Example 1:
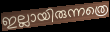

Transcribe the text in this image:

ഇല്ലായിരുന്നത്രെ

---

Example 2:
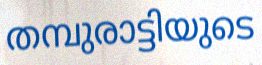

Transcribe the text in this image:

തമ്പുരാട്ടിയുടെ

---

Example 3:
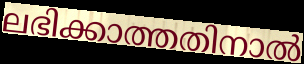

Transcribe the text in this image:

ലഭിക്കാത്തതിനാൽ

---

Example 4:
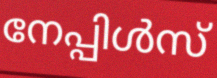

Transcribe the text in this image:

നേപ്പിൾസ്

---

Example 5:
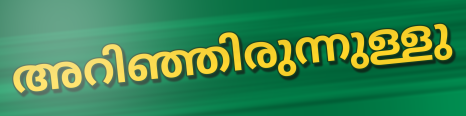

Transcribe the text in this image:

അറിഞ്ഞിരുന്നുള്ളു